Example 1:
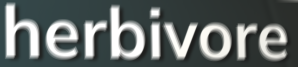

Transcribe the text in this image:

herbivore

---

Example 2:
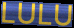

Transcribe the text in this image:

LULU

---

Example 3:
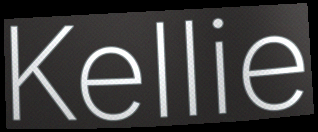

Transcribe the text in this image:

Kellie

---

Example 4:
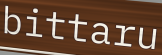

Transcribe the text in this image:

bittaru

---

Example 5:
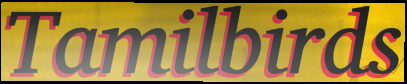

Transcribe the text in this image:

Tamilbirds